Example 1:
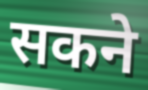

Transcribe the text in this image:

सकने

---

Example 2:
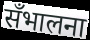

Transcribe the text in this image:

सँभालना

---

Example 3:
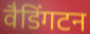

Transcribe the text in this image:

वैडिंगटन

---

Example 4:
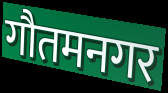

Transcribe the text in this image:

गौतमनगर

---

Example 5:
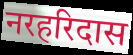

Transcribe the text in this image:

नरहरिदास